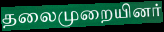
தலைமுறையினர்